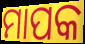
ମାପକ